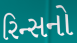
રિન્સનો